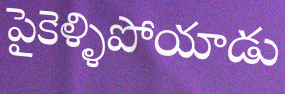
పైకెళ్ళిపోయాడు